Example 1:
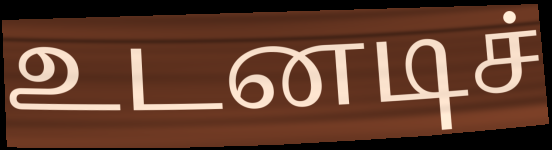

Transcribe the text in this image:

உடனடிச்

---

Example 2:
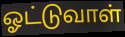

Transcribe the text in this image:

ஓட்டுவாள்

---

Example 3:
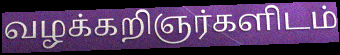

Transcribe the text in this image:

வழக்கறிஞர்களிடம்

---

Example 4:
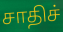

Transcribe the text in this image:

சாதிச்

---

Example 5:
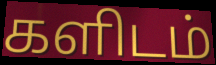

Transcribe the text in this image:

களிடம்